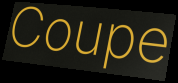
Coupe